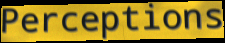
Perceptions